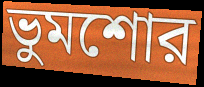
ভুমশোর